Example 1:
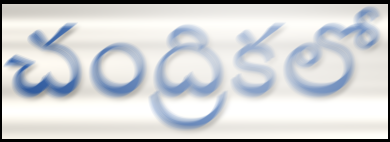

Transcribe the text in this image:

చంద్రికలో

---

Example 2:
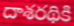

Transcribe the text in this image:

దాశరథికి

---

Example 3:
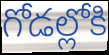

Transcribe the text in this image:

గోడల్లోకి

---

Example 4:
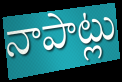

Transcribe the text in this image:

నాపాట్లు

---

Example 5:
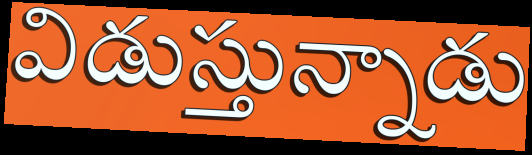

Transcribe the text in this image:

విడుస్తున్నాడు